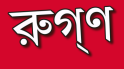
রুগ্ণ